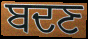
ਬਦਣ